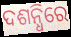
ଦଶନ୍ଧିରେ